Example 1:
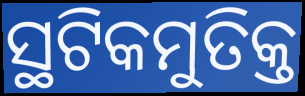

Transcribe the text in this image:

ସ୍ଥଟିକମୁତିକ୍ତ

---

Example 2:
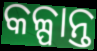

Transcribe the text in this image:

କଳ୍ପାନ୍ତ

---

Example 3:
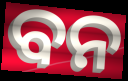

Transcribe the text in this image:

ବନ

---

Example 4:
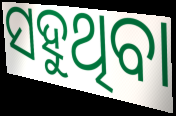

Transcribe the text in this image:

ସହୁଥିବା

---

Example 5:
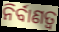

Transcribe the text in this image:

ନିର୍ବାଣତ୍ୱ